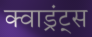
क्वाड्रंट्स